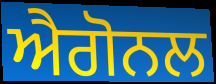
ਐਗੋਨਲ